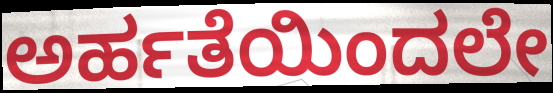
ಅರ್ಹತೆಯಿಂದಲೇ